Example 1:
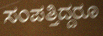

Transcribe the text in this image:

ಸಂಪತ್ತಿದ್ದರೂ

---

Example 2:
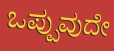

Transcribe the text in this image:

ಒಪ್ಪುವುದೇ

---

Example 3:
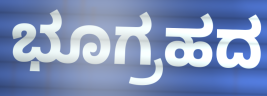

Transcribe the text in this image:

ಭೂಗ್ರಹದ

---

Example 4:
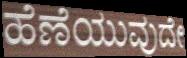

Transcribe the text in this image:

ಹೆಣೆಯುವುದೇ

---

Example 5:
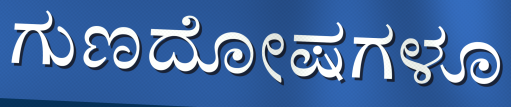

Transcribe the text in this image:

ಗುಣದೋಷಗಳೂ